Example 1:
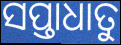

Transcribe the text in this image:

ସପ୍ତାଧାତୁ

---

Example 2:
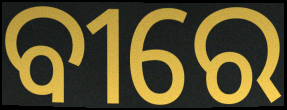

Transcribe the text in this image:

ବୀରେ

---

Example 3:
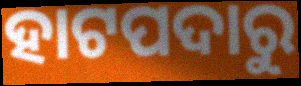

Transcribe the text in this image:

ହାଟପଦାରୁ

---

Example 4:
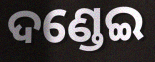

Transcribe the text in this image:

ଦଣ୍ଡେଇ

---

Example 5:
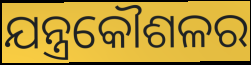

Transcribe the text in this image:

ଯନ୍ତ୍ରକୌଶଳର